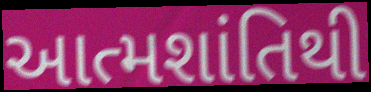
આત્મશાંતિથી